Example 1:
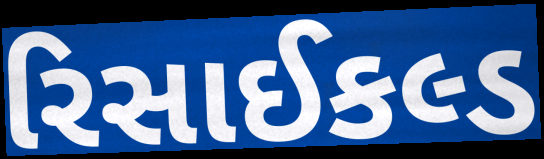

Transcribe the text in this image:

રિસાઈકલ્ડ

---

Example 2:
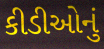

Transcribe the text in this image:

કીડીઓનું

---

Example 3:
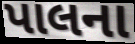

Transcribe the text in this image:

પાલના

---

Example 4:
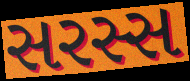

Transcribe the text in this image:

સરસ્સ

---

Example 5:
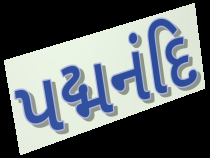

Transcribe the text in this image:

પદ્મનંદિ